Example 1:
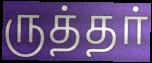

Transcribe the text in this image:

ருத்தர்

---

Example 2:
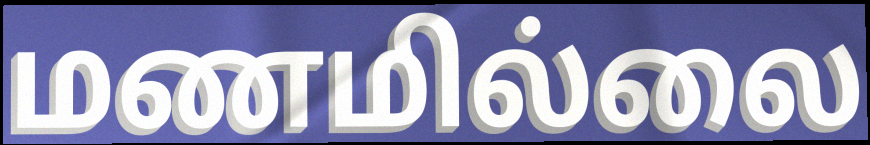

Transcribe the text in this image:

மணமில்லை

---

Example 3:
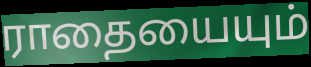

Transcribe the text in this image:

ராதையையும்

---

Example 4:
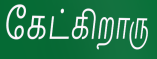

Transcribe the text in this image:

கேட்கிறாரு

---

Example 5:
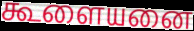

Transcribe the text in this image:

கூளையனை